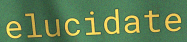
elucidate